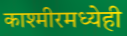
काश्‍मीरमध्येही